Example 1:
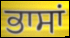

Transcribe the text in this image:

ਭਾਸਾਂ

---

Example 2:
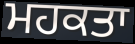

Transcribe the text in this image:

ਮਹਕਤਾ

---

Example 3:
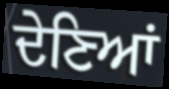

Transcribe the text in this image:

ਦੇਣਿਆਂ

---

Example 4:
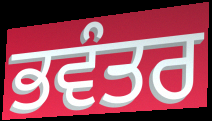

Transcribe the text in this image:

ਭਵੰਤਰ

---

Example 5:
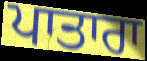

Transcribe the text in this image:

ਪਾਤਾਰਾ